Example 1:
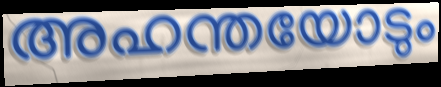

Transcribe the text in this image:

അഹന്തയോടും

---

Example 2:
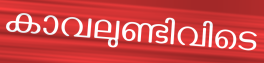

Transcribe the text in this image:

കാവലുണ്ടിവിടെ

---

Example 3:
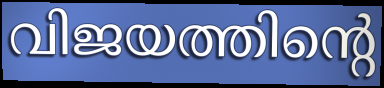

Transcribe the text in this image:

വിജയത്തിന്റെ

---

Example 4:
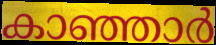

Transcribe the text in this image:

കാഞ്ഞാർ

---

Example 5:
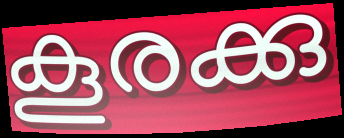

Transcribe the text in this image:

കൂരക്കു